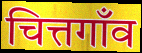
चित्तगाँव